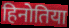
हिनोतिया